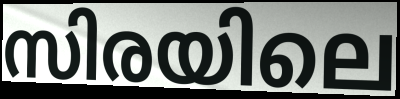
സിരയിലെ